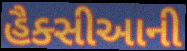
હૈક્સીઆની